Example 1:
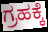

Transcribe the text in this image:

ಗ್ರಹಕ್ಕೆ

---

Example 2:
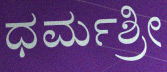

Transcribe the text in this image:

ಧರ್ಮಶ್ರೀ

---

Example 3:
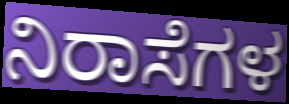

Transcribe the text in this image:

ನಿರಾಸೆಗಳ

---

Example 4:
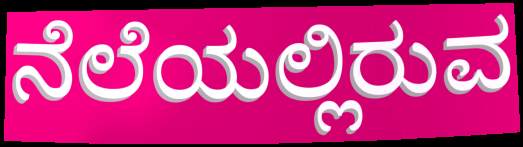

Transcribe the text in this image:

ನೆಲೆಯಲ್ಲಿರುವ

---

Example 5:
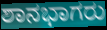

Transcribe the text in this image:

ಶಾನಭಾಗರು